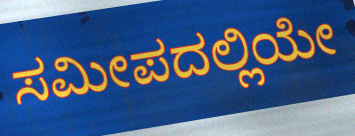
ಸಮೀಪದಲ್ಲಿಯೇ